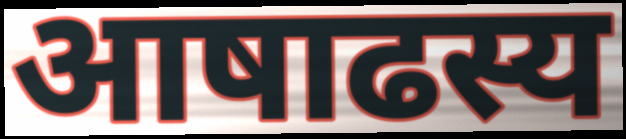
आषाढस्य